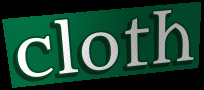
cloth